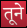
तूने